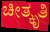
ಚೀತ್ಕೃತಿ